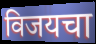
विजयचा